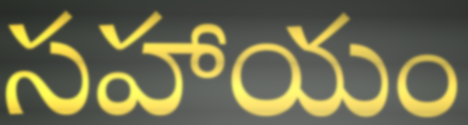
సహాయం